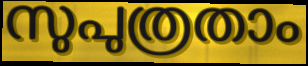
സുപുത്രതാം